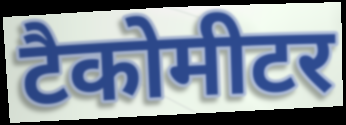
टैकोमीटर